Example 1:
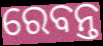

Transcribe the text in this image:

ରେବନ୍ତ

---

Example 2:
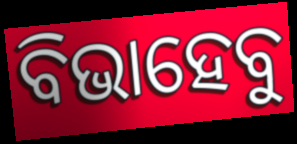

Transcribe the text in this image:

ବିଭାହେବୁ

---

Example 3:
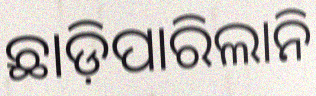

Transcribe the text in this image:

ଛାଡ଼ିପାରିଲାନି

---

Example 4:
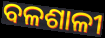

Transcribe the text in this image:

ବଳଶାଳୀ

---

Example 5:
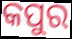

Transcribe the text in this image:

କପୁର